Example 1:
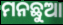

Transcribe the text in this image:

ମନଛୁଆ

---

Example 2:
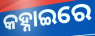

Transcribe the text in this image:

କହ୍ନାଇରେ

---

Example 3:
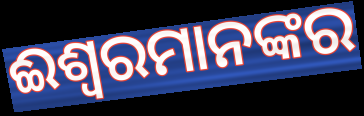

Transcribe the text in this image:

ଈଶ୍ୱରମାନଙ୍କର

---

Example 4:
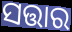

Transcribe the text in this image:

ସତ୍ତାର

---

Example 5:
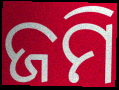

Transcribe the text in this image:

ଜମି